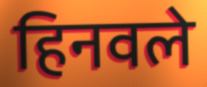
हिनवले